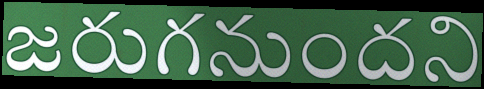
జరుగనుందని